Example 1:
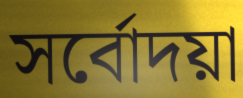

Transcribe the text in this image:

সৰ্বোদয়া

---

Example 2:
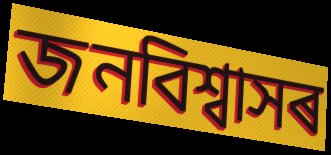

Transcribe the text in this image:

জনবিশ্বাসৰ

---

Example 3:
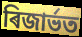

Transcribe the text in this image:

ৰিজাৰ্ভত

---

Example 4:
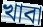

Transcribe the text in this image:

খাবা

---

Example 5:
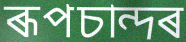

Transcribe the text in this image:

ৰূপচান্দৰ